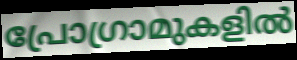
പ്രോഗ്രാമുകളിൽ